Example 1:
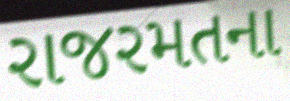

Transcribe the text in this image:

રાજરમતના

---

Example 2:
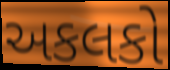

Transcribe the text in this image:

અકલકો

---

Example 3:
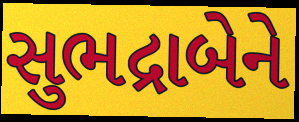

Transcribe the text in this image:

સુભદ્રાબેને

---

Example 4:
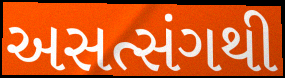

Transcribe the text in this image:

અસત્સંગથી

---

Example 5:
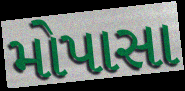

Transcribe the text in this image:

મોપાસા